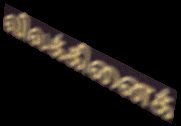
விலக்கினைக்